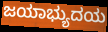
ಜಯಾಭ್ಯುದಯ